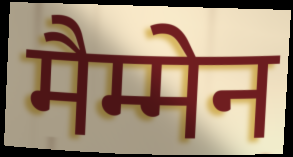
मैम्मेन